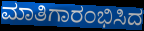
ಮಾತಿಗಾರಂಭಿಸಿದ